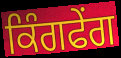
ਕਿੰਗਫੇਂਗ